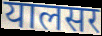
यालसर